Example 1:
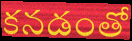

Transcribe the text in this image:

కనడంతో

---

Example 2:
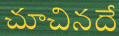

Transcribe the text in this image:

చూచినదే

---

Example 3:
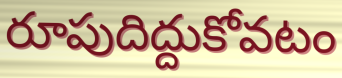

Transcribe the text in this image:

రూపుదిద్దుకోవటం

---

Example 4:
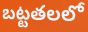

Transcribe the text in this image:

బట్టతలలో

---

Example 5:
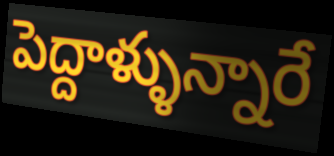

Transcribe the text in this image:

పెద్దాళ్ళున్నారే